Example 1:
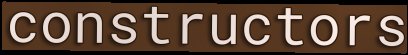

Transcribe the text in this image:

constructors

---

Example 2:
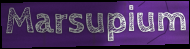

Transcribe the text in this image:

Marsupium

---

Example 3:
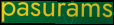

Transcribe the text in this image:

pasurams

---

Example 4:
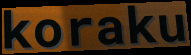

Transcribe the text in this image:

koraku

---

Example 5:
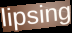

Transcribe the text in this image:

lipsing